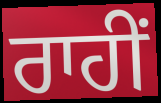
ਰਾਹੀਂ